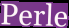
Perle